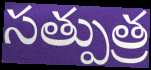
సత్పుత్ర